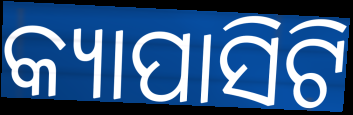
କ୍ୟାପାସିଟି